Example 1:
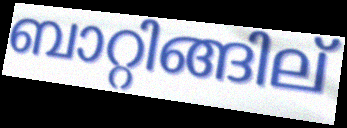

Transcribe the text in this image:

ബാറ്റിങ്ങില്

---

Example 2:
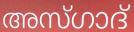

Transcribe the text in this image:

അസ്ഗാദ്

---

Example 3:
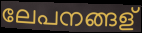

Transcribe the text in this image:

ലേപനങ്ങള്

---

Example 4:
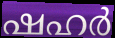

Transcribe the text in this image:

ഷഹർ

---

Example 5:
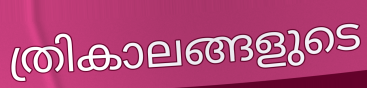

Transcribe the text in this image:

ത്രികാലങ്ങളുടെ